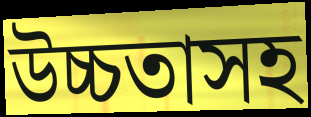
উচ্চতাসহ